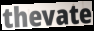
thevate